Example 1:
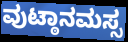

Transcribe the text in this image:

ವುಟ್ಠಾನಮಸ್ಸ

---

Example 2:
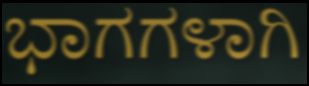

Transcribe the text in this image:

ಭಾಗಗಳಾಗಿ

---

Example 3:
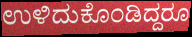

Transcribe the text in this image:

ಉಳಿದುಕೊಂಡಿದ್ದರೂ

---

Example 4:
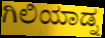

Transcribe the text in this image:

ಗಿಲಿಯಾಡ್ನ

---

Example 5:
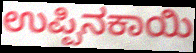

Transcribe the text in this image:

ಉಪ್ಪಿನಕಾಯಿ